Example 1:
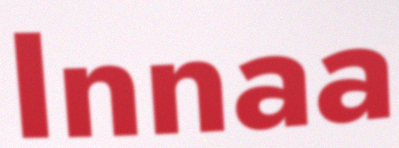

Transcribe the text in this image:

Innaa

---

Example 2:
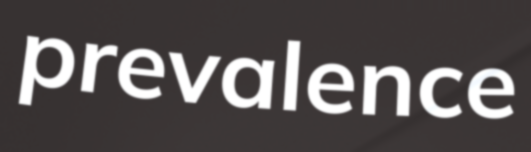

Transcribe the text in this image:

prevalence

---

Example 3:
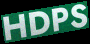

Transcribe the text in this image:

HDPS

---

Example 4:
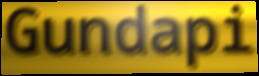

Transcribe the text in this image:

Gundapi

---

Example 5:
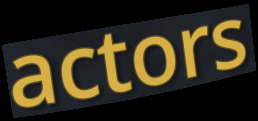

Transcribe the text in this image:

actors